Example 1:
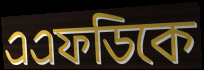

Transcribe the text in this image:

এএফডিকে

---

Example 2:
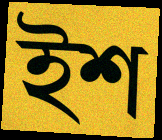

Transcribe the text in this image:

ইশ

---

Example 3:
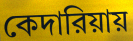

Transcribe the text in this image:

কেদারিয়ায়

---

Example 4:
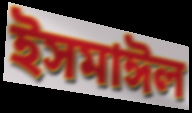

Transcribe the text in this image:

ইসমাঈল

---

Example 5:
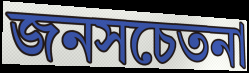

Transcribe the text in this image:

জনসচেতনা